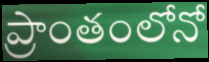
ప్రాంతంలోనో